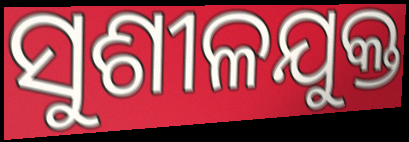
ସୁଶୀଳଯୁକ୍ତ